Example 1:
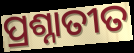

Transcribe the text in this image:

ପ୍ରଶ୍ନାତୀତ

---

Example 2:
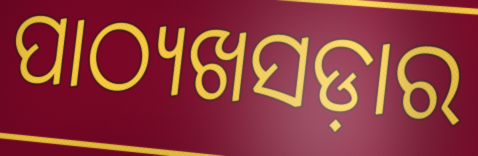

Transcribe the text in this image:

ପାଠ୍ୟଖସଡ଼ାର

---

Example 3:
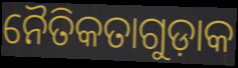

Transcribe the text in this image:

ନୈତିକତାଗୁଡ଼ାକ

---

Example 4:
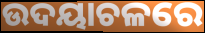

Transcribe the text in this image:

ଉଦୟାଚଳରେ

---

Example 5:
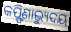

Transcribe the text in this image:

କପ୍ଫିଣାଭ୍ୟୁଦୟ